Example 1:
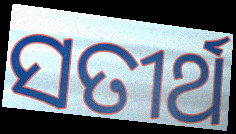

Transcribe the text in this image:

ସତୀର୍ଥ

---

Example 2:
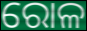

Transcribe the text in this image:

ରୋଳ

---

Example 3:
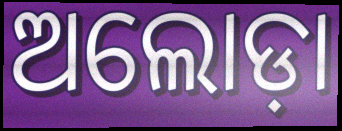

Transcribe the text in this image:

ଅଲୋଡ଼ା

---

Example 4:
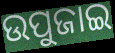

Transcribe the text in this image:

ଉପୁଜାଇ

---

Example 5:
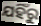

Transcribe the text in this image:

ଯହିଁରୁ